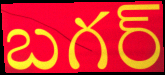
బగర్